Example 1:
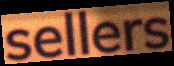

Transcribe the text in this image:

sellers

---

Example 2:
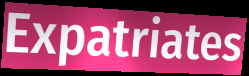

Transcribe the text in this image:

Expatriates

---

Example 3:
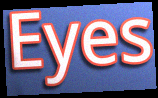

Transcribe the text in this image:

Eyes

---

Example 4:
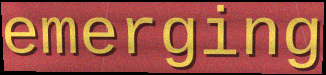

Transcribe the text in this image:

emerging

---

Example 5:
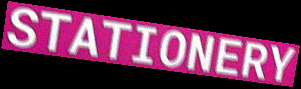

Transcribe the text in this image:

STATIONERY